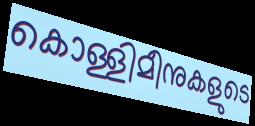
കൊള്ളിമീനുകളുടെ